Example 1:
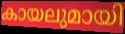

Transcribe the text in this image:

കായലുമായി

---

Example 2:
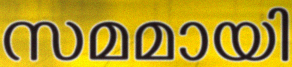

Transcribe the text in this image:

സമമായി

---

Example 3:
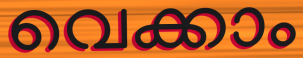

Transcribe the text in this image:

വെക്കാം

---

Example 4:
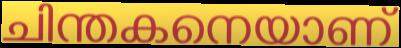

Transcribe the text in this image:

ചിന്തകനെയാണ്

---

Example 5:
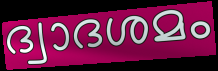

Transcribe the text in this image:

ദ്വാദശമം